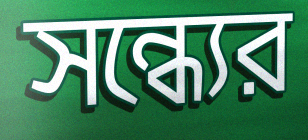
সন্ধ্যের